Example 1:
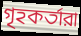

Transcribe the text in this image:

গৃহকর্তারা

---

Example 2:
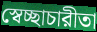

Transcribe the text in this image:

স্বেচ্ছাচারীতা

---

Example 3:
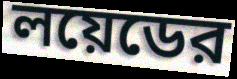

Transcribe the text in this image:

লয়েডের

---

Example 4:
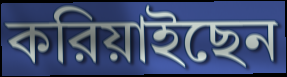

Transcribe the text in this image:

করিয়াইছেন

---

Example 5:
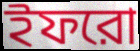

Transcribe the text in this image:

ইফরো